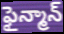
ఫైన్మాన్